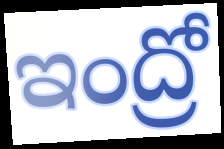
ఇంద్రో